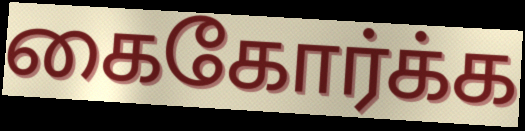
கைகோர்க்க